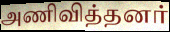
அணிவித்தனர்